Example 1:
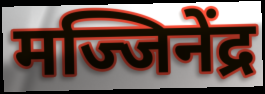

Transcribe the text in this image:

मज्जिनेंद्र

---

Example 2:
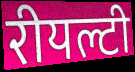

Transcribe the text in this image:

रीयल्टी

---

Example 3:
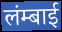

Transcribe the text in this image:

लंम्बाई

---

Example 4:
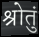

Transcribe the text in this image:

श्रोतुं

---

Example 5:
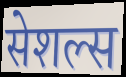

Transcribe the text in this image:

सेशल्स